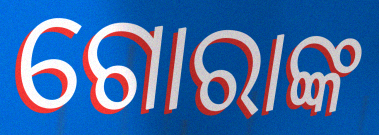
ଗୋରାଙ୍କ